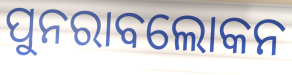
ପୁନରାବଲୋକନ